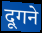
दूगने